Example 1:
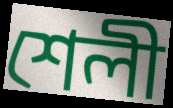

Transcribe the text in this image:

শেলী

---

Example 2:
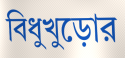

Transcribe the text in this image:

বিধুখুড়োর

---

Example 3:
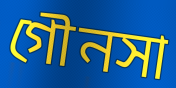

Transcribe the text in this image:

গৌনসা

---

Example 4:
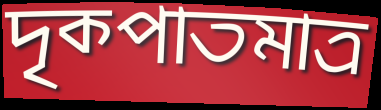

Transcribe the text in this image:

দৃক্পাতমাত্র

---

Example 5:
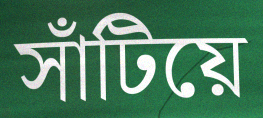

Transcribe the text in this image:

সাঁটিয়ে